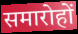
समारोहों